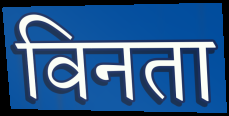
विनता